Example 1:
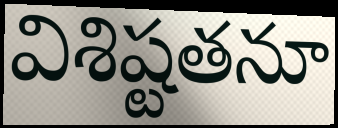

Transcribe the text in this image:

విశిష్టతనూ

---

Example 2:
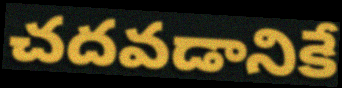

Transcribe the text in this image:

చదవడానికే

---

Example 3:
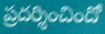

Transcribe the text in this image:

ప్రదర్శించిందో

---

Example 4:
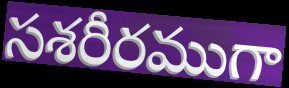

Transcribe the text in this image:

సశరీరముగా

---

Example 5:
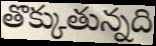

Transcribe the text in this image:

తొక్కుతున్నది